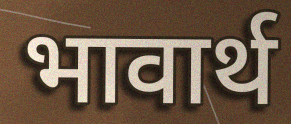
भावार्थ